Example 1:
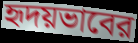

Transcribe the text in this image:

হৃদয়ভাবের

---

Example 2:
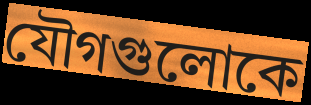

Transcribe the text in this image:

যৌগগুলোকে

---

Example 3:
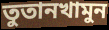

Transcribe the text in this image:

তুতানখামুন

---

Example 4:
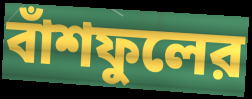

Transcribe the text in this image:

বাঁশফুলের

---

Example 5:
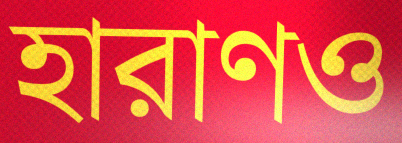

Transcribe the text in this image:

হারাণও